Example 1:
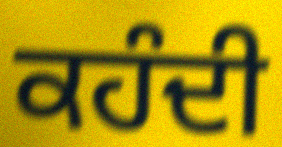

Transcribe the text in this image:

ਕਹੰਦੀ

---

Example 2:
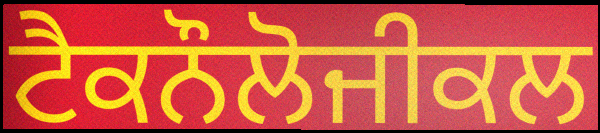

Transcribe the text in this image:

ਟੈਕਨੌਲੋਜੀਕਲ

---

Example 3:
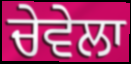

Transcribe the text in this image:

ਚੇਵੇਲਾ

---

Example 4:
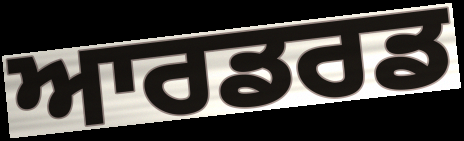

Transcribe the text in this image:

ਆਰਡਰਡ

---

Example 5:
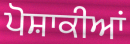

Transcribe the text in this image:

ਪੋਸ਼ਾਕੀਆਂ